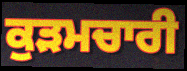
ਕੁੜਮਚਾਰੀ